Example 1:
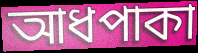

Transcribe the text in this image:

আধপাকা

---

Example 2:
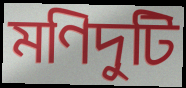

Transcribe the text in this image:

মণিদুটি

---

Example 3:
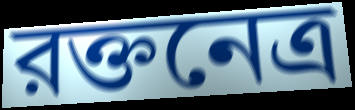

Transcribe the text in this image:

রক্তনেত্র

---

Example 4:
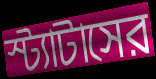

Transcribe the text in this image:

স্ট্যাটাসের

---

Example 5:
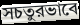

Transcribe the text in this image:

সচতুরভাবে